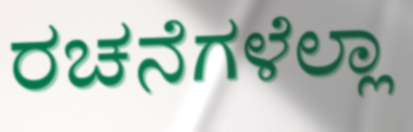
ರಚನೆಗಳೆಲ್ಲಾ